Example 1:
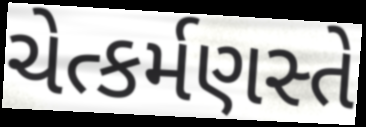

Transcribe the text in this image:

ચેત્કર્મણસ્તે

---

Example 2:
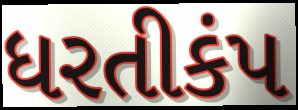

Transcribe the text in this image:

ધરતીકંપ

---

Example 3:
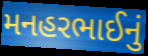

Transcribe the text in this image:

મનહરભાઈનું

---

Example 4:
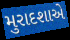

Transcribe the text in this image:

મુરાદશાએ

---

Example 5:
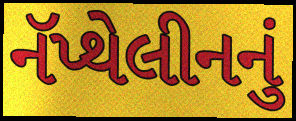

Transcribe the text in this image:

નૅપ્થેલીનનું